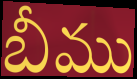
బీము